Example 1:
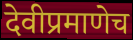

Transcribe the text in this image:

देवीप्रमाणेच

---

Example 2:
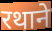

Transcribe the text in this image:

रथाने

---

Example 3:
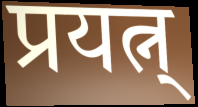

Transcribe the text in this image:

प्रयत्न्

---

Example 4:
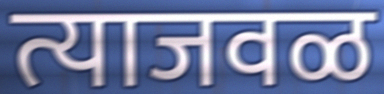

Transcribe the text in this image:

त्याजवळ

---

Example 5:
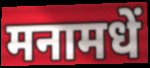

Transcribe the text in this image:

मनामधें